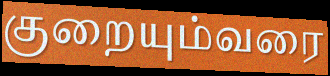
குறையும்வரை